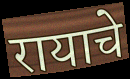
रायाचे